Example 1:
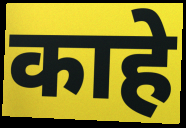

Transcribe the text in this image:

काहे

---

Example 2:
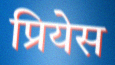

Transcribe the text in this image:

प्रियेस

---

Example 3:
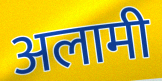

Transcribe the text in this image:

अलामी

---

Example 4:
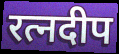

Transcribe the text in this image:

रत्नदीप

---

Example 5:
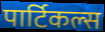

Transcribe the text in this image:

पार्टिकल्‍स